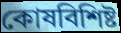
কোষবিশিষ্ট